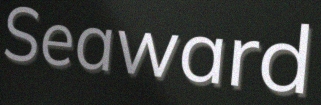
Seaward